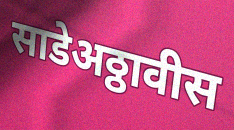
साडेअठ्ठावीस